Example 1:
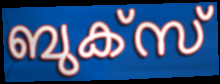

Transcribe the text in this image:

ബുക്സ്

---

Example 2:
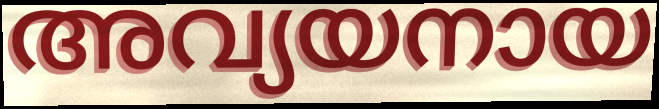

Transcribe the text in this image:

അവ്യയനായ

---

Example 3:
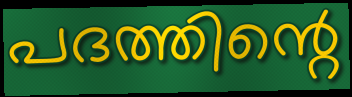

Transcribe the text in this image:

പദത്തിന്റെ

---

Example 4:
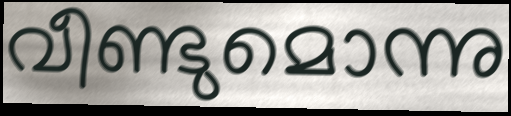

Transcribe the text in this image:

വീണ്ടുമൊന്നു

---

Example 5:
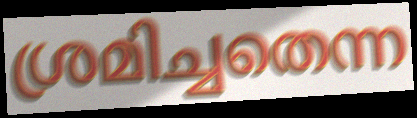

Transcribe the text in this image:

ശ്രമിച്ചതെന്ന